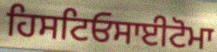
ਹਿਸਟਿਓਸਾਈਟੋਮਾ